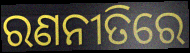
ରଣନୀତିରେ